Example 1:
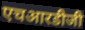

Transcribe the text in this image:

एचआरडीजी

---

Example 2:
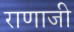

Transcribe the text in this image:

राणाजी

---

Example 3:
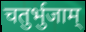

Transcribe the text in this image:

चतुर्भुजाम्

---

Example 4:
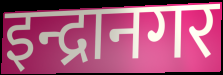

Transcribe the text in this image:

इन्द्रानगर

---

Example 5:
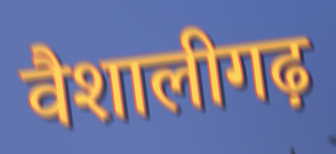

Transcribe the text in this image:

वैशालीगढ़